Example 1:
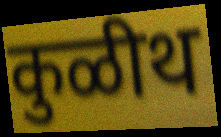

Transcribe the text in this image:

कुळीथ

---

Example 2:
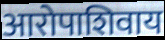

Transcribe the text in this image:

आरोपाशिवाय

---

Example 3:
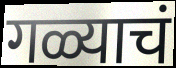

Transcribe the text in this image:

गळ्याचं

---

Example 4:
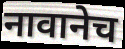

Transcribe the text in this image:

नावानेच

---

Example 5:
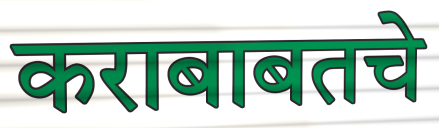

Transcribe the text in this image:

कराबाबतचे